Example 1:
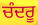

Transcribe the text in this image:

ਚੰਦਰੂ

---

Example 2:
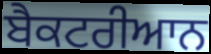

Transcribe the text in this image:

ਬੈਕਟਰੀਆਨ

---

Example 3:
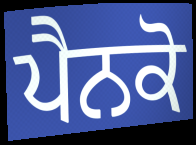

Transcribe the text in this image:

ਪੈਨਕੋ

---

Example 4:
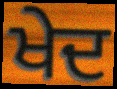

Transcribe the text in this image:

ਖੇਦ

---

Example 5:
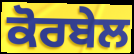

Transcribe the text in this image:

ਕੋਰਬੇਲ